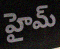
హైమ్